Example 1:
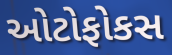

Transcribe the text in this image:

ઓટોફોકસ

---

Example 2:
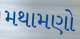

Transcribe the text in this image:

મથામણો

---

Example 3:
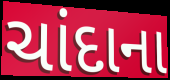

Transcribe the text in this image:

ચાંદાના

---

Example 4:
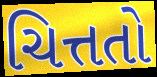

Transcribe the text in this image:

ચિત્તતો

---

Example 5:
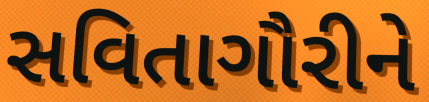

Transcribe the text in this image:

સવિતાગૌરીને